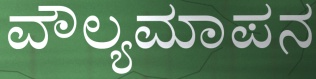
ವೌಲ್ಯಮಾಪನ